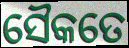
ସୈକତେ